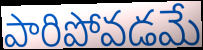
పారిపోవడమే